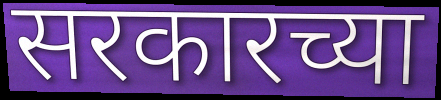
सरकारच्या